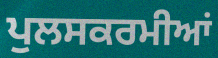
ਪੁਲਸਕਰਮੀਆਂ